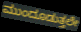
ಮುಂದೂಡುತ್ತಲೇ